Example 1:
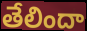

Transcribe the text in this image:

తేలిందా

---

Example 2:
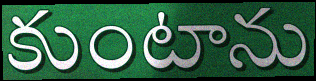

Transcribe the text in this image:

కుంటాను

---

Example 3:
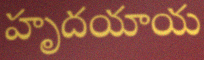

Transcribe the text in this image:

హృదయాయ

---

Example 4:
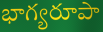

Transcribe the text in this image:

భాగ్యరూపా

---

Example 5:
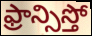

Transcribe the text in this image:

ఫ్రాన్సిస్తో